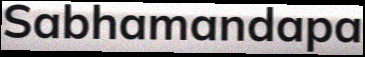
Sabhamandapa